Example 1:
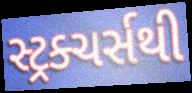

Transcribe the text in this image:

સ્ટ્રક્ચર્સથી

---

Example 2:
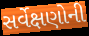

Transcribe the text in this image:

સર્વેક્ષણોની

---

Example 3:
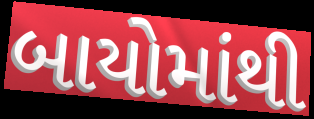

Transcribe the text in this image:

બાયોમાંથી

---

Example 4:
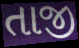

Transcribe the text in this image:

તાજી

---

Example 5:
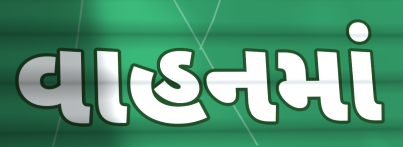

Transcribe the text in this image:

વાહનમાં